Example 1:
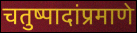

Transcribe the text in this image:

चतुष्पादांप्रमाणे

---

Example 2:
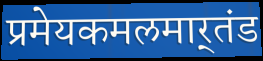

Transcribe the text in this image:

प्रमेयकमलमार्तंड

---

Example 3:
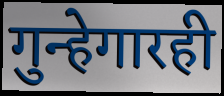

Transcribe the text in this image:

गुन्हेगारही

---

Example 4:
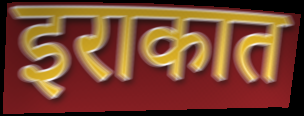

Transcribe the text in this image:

इराकात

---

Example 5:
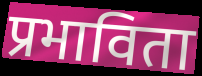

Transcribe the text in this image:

प्रभाविता